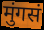
मुंगसं